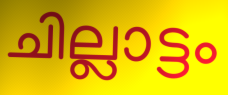
ചില്ലാട്ടം